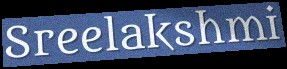
Sreelakshmi